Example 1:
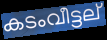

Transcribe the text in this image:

കടംവീട്ടല്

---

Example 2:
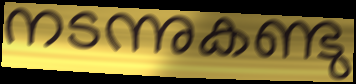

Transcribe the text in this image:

നടന്നുകണ്ടു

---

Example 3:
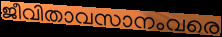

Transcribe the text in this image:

ജീവിതാവസാനംവരെ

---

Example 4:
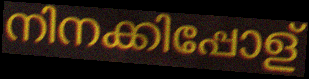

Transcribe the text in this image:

നിനക്കിപ്പോള്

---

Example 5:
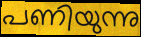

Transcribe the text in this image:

പണിയുന്നു